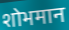
शोभमान